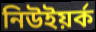
নিউইয়ৰ্ক